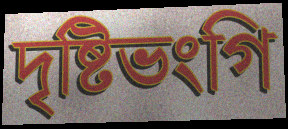
দৃষ্টিভংগি